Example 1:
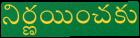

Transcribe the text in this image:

నిర్ణయించకు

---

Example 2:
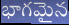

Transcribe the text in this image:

భాగమైన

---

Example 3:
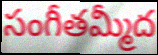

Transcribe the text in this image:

సంగీతమ్మీద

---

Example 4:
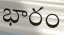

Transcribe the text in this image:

భారం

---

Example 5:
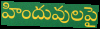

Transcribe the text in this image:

హిందువులపై